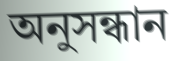
অনুসন্ধান